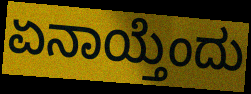
ಏನಾಯ್ತೆಂದು